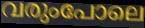
വരുംപോലെ